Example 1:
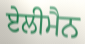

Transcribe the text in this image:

ਏਲੀਮੈਨ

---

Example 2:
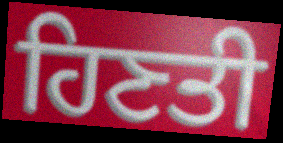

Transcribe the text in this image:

ਹਿਣਤੀ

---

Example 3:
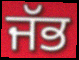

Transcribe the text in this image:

ਜੱਭ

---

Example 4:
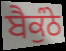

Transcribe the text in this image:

ਬੈਕੁੰਠੇ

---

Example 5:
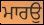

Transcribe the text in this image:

ਮਾਰਉ